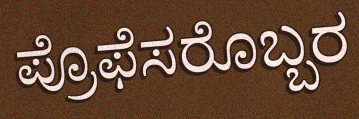
ಪ್ರೊಫೆಸರೊಬ್ಬರ